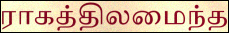
ராகத்திலமைந்த